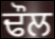
ਢੌਲ